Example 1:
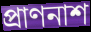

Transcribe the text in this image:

প্রাণনাশ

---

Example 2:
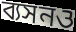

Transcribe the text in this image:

ব্যসনও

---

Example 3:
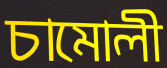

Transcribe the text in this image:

চামোলী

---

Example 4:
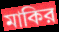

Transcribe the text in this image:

মাকির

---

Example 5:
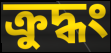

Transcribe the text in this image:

ক্রুদ্ধং